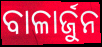
ବାଳାର୍ଜୁନ